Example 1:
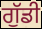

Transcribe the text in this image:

ਗੁੱਡੀ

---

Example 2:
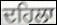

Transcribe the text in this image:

ਦਹਿਲਾ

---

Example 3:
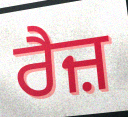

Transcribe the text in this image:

ਰੈਜ਼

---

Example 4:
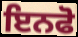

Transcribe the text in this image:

ਇਨਫੋ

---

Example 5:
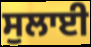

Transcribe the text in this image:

ਸੁਲਾਈ